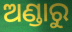
ଅଣ୍ଡାରୁ